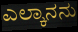
ಎಲ್ಕಾನನು